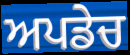
ਅਪਡੇਚ